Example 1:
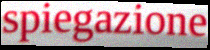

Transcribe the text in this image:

spiegazione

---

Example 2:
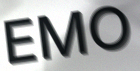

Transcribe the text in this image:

EMO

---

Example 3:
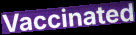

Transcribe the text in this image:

Vaccinated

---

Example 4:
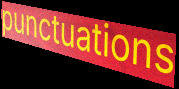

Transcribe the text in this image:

punctuations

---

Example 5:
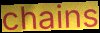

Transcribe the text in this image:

chains